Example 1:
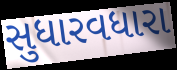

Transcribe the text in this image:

સુધારવધારા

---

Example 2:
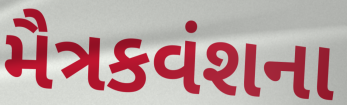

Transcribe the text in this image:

મૈત્રકવંશના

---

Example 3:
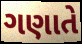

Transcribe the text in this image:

ગણાતે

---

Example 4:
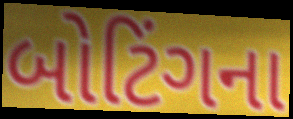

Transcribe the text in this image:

બોટિંગના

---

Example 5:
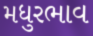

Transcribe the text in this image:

મધુરભાવ